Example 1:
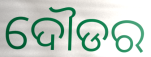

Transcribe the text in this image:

ଦୌଡର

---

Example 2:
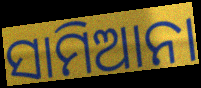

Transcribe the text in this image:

ସାମିଆନା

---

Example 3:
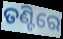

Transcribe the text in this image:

ତଣ୍ଟିରେ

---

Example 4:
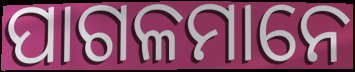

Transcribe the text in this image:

ପାଗଳମାନେ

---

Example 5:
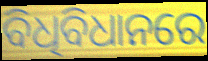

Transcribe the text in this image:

ବିଧିବିଧାନରେ